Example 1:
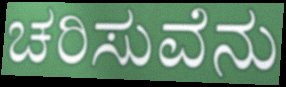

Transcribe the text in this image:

ಚರಿಸುವೆನು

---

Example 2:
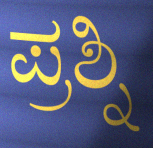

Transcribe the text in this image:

ಪ್ರಶ್ನಿ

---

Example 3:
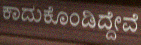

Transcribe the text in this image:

ಕಾದುಕೊಂಡಿದ್ದೇವೆ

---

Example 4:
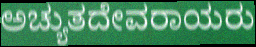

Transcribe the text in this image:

ಅಚ್ಯುತದೇವರಾಯರು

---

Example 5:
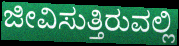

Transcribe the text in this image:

ಜೀವಿಸುತ್ತಿರುವಲ್ಲಿ